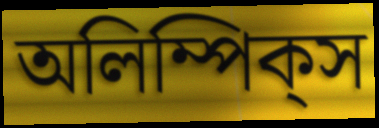
অলিম্পিক্‌স